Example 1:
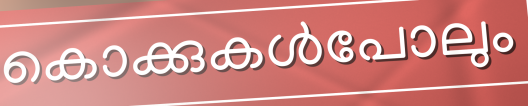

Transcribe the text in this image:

കൊക്കുകൾപോലും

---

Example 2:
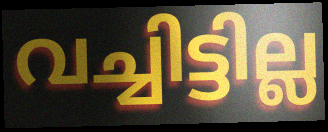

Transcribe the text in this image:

വച്ചിട്ടില്ല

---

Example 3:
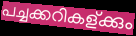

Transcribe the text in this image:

പച്ചക്കറികള്ക്കും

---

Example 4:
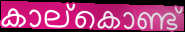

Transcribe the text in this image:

കാല്കൊണ്ട്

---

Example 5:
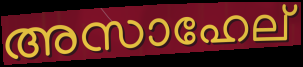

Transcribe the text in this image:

അസാഹേല്